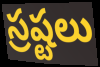
స్రష్టలు